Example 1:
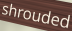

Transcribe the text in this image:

shrouded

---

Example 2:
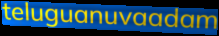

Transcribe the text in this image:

teluguanuvaadam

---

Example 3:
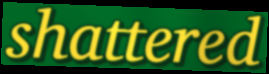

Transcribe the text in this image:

shattered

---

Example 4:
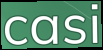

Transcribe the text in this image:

casi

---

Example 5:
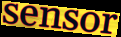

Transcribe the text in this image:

sensor